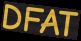
DFAT